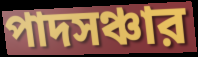
পাদসঞ্চার